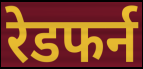
रेडफर्न